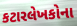
કટારલેખકોના